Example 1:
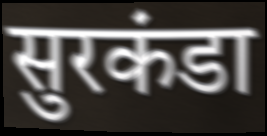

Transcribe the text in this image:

सुरकंडा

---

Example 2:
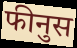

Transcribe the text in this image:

फीनुस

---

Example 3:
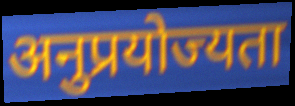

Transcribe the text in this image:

अनुप्रयोज्यता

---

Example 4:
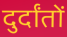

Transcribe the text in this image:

दुर्दांतों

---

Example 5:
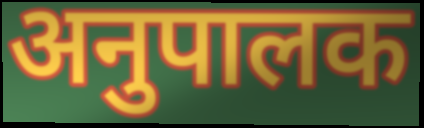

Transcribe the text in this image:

अनुपालक